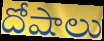
దోషాలు